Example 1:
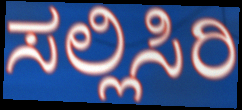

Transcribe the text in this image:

ಸಲ್ಲಿಸಿರಿ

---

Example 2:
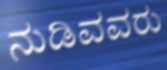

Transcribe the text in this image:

ನುಡಿವವರು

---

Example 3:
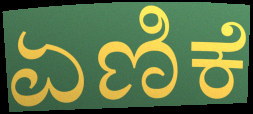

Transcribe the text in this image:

ಏಣಿಕೆ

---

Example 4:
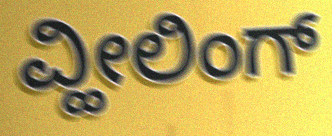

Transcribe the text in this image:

ವ್ಹೀಲಿಂಗ್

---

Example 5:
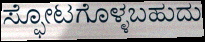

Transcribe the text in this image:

ಸ್ಫೋಟಗೊಳ್ಳಬಹುದು